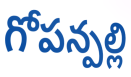
గోపన్పల్లి